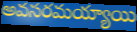
అవసరమయ్యాయి